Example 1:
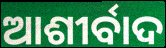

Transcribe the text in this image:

ଆଶୀର୍ବାଦ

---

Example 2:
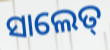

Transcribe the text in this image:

ସାଲେତ୍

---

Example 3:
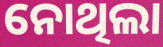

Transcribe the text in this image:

ନୋଥିଲା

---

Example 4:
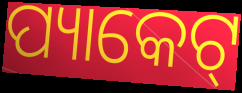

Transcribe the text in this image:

ପ୍ୟାକେଟ୍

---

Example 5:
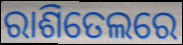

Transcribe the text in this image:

ରାଶିତେଲରେ